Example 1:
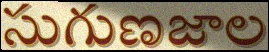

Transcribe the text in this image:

సుగుణజాల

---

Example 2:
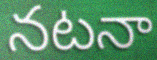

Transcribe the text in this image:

నటనా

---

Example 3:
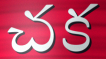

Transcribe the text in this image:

చక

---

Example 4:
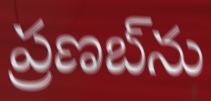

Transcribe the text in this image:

ప్రణబ్‌ను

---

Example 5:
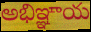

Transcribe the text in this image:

అభిఞ్ఞాయ